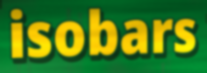
isobars